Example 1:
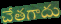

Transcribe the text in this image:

చేతగాదు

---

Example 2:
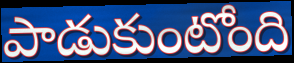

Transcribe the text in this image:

పాడుకుంటోంది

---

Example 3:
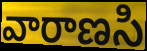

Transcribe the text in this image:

వారాణసి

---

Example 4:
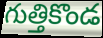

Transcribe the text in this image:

గుత్తికొండ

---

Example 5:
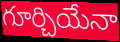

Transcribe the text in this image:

గూర్చియేనా